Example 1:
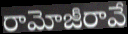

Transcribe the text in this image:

రామోజీరావే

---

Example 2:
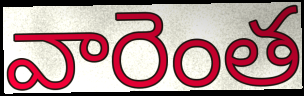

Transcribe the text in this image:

వారెంత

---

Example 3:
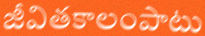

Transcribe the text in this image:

జీవితకాలంపాటు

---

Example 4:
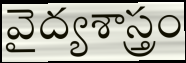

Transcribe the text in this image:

వైద్యశాస్త్రం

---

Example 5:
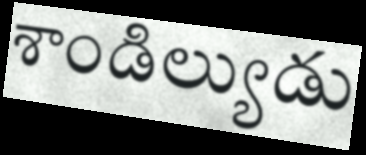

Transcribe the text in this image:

శాండిల్యుడు